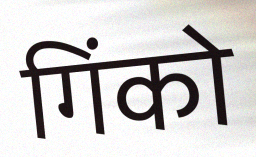
गिंको